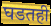
घडतही